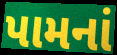
પામનાં